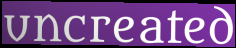
uncreated